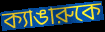
ক্যাঙারুকে